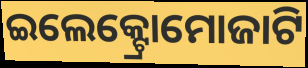
ଇଲେକ୍ଟ୍ରୋମୋଜାଟି